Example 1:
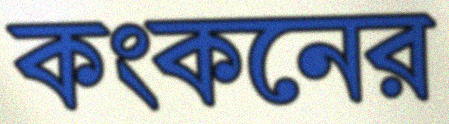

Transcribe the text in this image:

কংকনের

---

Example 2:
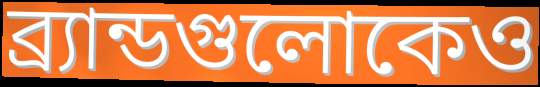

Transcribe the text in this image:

ব্র্যান্ডগুলোকেও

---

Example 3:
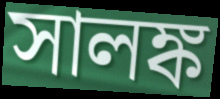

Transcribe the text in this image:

সালঙ্ক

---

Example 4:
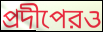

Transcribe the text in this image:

প্রদীপেরও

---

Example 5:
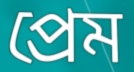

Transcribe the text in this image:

প্রেম